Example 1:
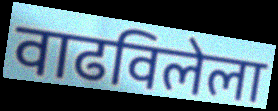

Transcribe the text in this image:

वाढविलेला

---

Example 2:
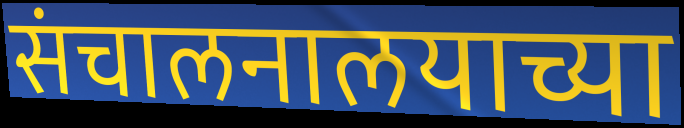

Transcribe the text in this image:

संचालनालयाच्या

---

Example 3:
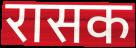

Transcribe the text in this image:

रासक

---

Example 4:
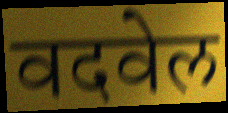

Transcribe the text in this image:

वदवेल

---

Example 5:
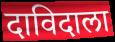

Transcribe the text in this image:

दाविदाला